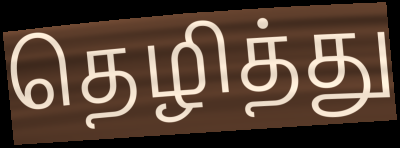
தெழித்து